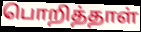
பொறித்தாள்